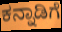
ಕನ್ನಾಡಿಗೆ